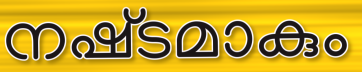
നഷ്‌ടമാകും